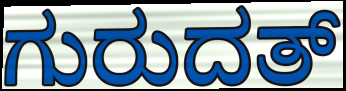
ಗುರುದತ್